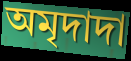
অমৃদাদা